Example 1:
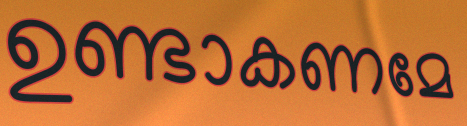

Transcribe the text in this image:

ഉണ്ടാകണമേ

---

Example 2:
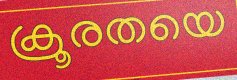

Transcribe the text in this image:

ക്രൂരതയെ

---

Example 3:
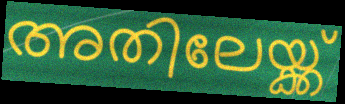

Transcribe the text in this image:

അതിലേയ്ക്ക്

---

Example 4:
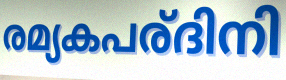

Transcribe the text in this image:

രമ്യകപര്ദിനി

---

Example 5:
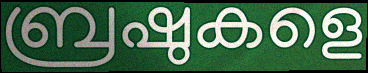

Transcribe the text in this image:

ബ്രഷുകളെ